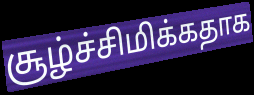
சூழ்ச்சிமிக்கதாக